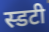
स्डटी